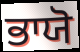
ਭਾਯੋ